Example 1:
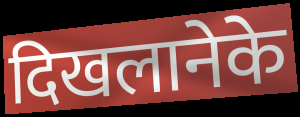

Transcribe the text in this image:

दिखलानेके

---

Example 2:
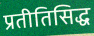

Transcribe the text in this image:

प्रतीतिसिद्ध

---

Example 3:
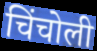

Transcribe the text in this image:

चिंचोली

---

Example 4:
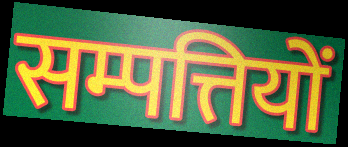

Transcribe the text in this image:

सम्‍पत्तियों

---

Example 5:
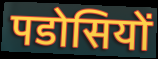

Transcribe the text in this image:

पडोसियों